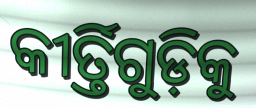
କୀର୍ତ୍ତିଗୁଡ଼ିକୁ